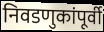
निवडणुकांपूर्वी